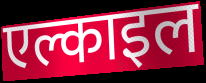
एल्काइल